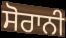
ਸੋਰਾਨੀ